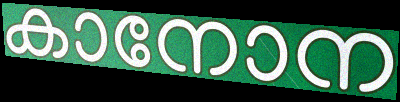
കാനോന